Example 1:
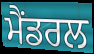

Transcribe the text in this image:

ਮੈਂਡਰਲ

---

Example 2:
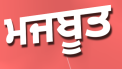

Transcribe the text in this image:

ਮਜਬੂਤ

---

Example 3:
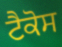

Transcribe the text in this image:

ਟੈਕੋਸ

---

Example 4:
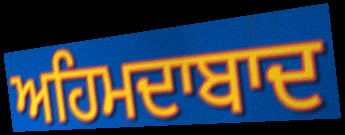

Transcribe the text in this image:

ਅਹਿਮਦਾਬਾਦ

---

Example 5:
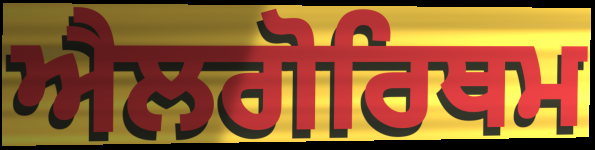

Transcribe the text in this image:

ਐਲਗੋਰਿਥਮ